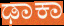
ಢಾಕಾ